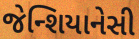
જેન્શિયાનેસી